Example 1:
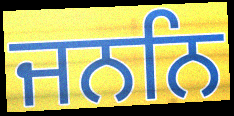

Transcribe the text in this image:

ਜਨਨਿ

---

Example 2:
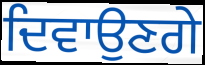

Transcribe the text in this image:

ਦਿਵਾਉਣਗੇ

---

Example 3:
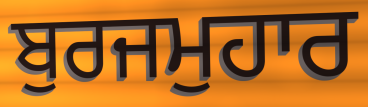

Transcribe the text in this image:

ਬੁਰਜਮੁਹਾਰ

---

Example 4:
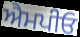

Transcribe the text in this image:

ਐਮਪੀਓ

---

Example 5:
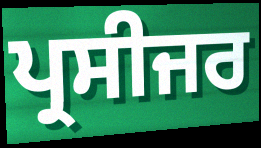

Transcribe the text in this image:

ਪ੍ਰਸੀਜਰ